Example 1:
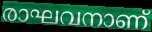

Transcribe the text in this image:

രാഘവനാണ്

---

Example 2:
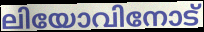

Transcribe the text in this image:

ലിയോവിനോട്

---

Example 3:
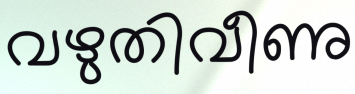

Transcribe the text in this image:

വഴുതിവീണു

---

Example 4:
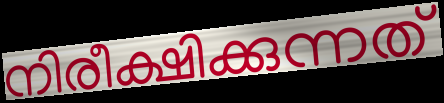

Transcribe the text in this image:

നിരീക്ഷിക്കുന്നത്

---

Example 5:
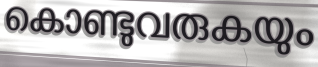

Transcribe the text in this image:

കൊണ്ടുവരുകയും